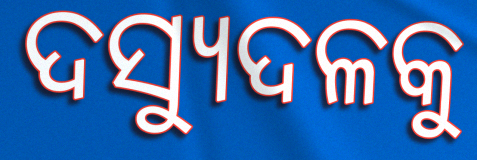
ଦସ୍ୟୁଦଳକୁ